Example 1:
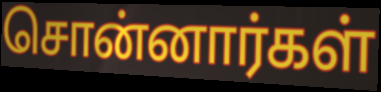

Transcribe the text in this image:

சொன்னார்கள்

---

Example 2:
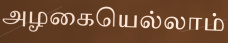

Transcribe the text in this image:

அழகையெல்லாம்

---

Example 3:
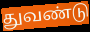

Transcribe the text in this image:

துவண்டு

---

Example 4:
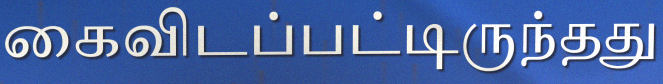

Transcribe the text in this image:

கைவிடப்பட்டிருந்தது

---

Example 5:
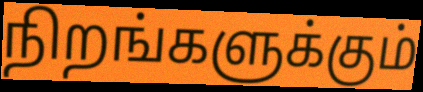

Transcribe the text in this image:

நிறங்களுக்கும்